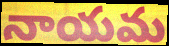
నాయమ